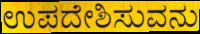
ಉಪದೇಶಿಸುವನು